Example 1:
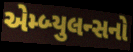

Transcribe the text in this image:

એમ્બ્યુલન્સનો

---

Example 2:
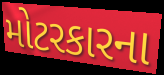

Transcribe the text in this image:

મોટરકારના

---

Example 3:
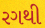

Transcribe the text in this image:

રગથી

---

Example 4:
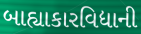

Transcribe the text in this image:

બાહ્યાકારવિદ્યાની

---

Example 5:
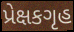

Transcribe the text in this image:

પ્રેક્ષકગૃહ